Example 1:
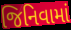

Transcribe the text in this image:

જિનિવામાં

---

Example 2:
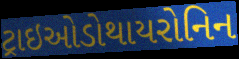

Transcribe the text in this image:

ટ્રાઇઓડોથાયરોનિન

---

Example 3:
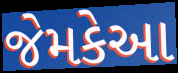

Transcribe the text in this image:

જેમકેઆ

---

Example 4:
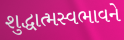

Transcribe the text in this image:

શુદ્ધાત્મસ્વભાવને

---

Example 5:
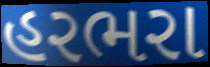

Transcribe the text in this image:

હરભરા